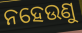
ନହେଉଣୁ